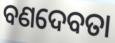
ବଣଦେବତା